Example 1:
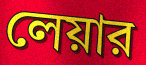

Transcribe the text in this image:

লেয়ার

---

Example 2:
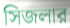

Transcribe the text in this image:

সিজলার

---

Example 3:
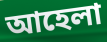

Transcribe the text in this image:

আহেলা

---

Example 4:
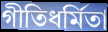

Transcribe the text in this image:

গীতিধর্মিতা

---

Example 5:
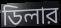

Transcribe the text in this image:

ডিলার